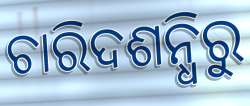
ଚାରିଦଶନ୍ଧିରୁ